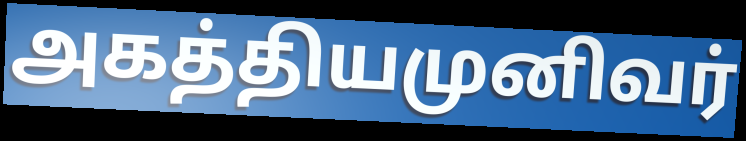
அகத்தியமுனிவர்